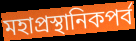
মহাপ্রস্থানিকপর্ব